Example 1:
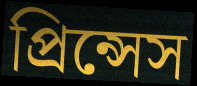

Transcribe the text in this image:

প্রিন্সেস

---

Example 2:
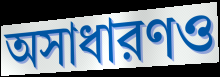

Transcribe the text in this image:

অসাধারণও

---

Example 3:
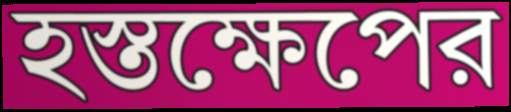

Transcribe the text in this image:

হস্তক্ষেপের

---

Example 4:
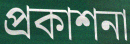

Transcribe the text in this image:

প্রকাশনা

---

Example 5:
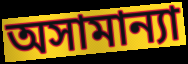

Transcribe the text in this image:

অসামান্যা